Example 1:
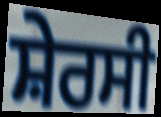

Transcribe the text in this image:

ਸ਼ੇਰਸੀ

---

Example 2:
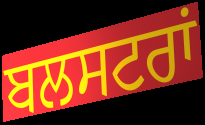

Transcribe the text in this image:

ਬਲਸਟਰਾਂ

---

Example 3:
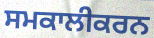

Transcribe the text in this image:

ਸਮਕਾਲੀਕਰਨ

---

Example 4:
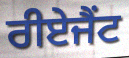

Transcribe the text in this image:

ਰੀਏਜੈਂਟ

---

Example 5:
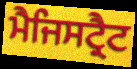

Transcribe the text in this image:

ਮੈਜਿਸਟ੍ਰੈਟ